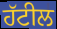
ਹੱਟੀਲ